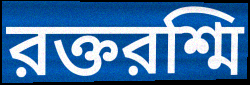
রক্তরশ্মি